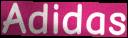
Adidas